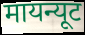
मायन्यूट